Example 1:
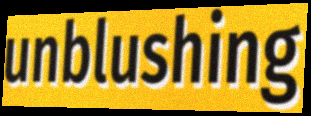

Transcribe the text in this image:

unblushing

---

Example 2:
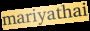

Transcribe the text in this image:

mariyathai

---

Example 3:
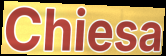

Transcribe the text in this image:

Chiesa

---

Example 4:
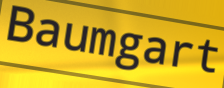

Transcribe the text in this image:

Baumgart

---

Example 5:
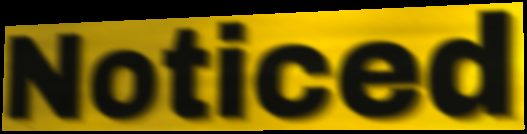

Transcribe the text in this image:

Noticed